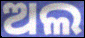
ଅଲ